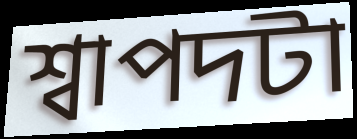
শ্বাপদটা